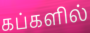
கப்களில்